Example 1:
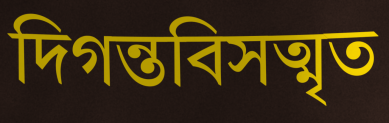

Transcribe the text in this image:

দিগন্তবিসত্মৃত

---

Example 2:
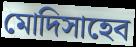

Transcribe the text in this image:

মোদিসাহেব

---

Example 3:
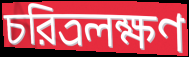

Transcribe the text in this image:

চরিত্রলক্ষণ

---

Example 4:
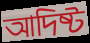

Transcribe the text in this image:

আদিষ্ট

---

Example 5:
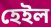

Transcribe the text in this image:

হেইল